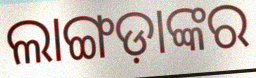
ଲାଙ୍ଗଡ଼ାଙ୍କର